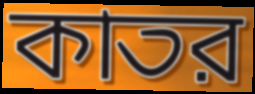
কাতর